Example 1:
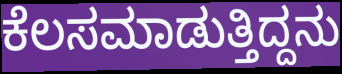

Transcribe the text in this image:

ಕೆಲಸಮಾಡುತ್ತಿದ್ದನು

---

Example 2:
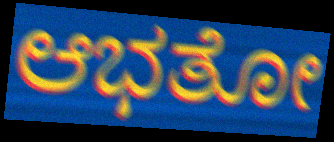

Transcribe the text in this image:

ಆಭತೋ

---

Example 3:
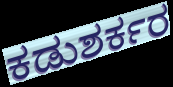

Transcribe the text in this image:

ಕಡುಶರ್ಕರ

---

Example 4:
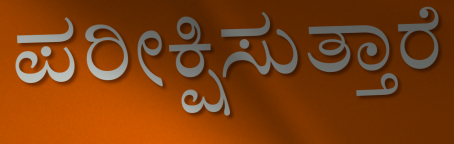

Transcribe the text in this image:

ಪರೀಕ್ಷಿಸುತ್ತಾರೆ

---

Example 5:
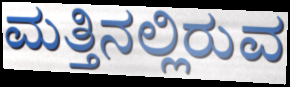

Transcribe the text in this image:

ಮತ್ತಿನಲ್ಲಿರುವ